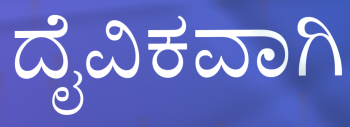
ದೈವಿಕವಾಗಿ